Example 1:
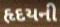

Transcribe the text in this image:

હૃદયની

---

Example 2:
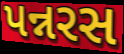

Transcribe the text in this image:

પન્નરસ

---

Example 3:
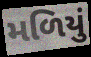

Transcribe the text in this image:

મળિયું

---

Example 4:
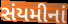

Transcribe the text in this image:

સંયમીનાં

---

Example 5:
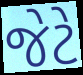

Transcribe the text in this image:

જેટે